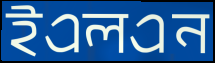
ইএলএন